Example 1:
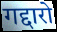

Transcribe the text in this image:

गद्दारो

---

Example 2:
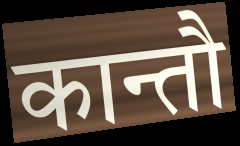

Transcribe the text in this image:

कान्तौ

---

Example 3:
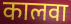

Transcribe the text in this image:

कालवा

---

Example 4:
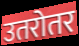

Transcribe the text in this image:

उतरोतर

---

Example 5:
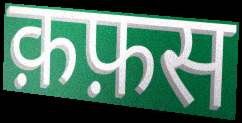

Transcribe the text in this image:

क़फ़स